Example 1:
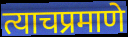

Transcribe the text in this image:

त्याचप्रमाणे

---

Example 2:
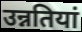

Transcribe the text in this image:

उन्नतियां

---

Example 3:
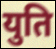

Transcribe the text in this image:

युति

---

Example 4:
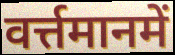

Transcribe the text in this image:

वर्त्तमानमें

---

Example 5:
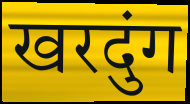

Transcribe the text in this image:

खरदुंग